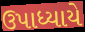
ઉપાધ્યાયે